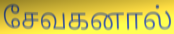
சேவகனால்